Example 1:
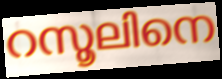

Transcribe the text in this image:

റസൂലിനെ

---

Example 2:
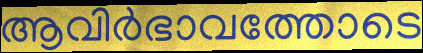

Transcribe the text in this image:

ആവിർഭാവത്തോടെ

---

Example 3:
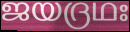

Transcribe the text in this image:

ജയദ്രഥഃ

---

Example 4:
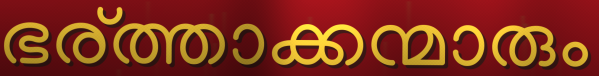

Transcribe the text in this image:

ഭര്ത്താക്കന്മാരും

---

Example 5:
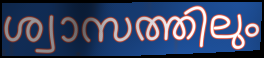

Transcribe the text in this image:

ശ്വാസത്തിലും